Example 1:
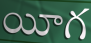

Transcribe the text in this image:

యీగ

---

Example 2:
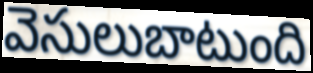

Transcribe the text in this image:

వెసులుబాటుంది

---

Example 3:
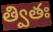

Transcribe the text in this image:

త్వితః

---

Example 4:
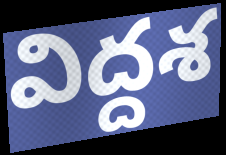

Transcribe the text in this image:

విద్దశ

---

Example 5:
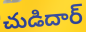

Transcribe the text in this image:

చుడిదార్